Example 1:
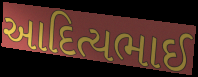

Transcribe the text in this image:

આદિત્યભાઈ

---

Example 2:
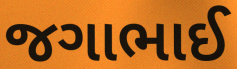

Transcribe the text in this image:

જગાભાઈ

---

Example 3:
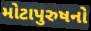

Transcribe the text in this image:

મોટાપુરુષનો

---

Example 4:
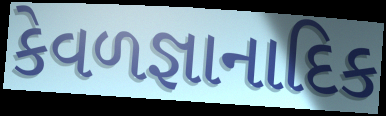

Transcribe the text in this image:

કેવળજ્ઞાનાદિક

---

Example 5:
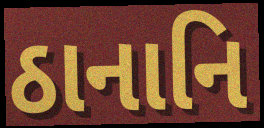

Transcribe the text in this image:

ઠાનાનિ